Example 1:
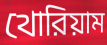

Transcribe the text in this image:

থোরিয়াম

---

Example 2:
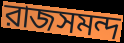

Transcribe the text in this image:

রাজসমন্দ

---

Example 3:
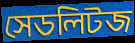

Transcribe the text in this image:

সেডলিটজ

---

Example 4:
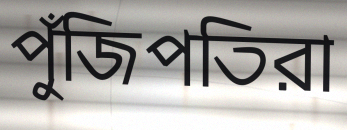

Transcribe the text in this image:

পুঁজিপতিরা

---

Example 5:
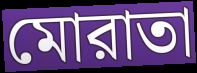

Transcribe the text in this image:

মোরাতা